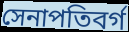
সেনাপতিবর্গ